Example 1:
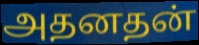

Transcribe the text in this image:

அதனதன்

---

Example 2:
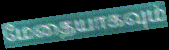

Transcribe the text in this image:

மேதையாகவும்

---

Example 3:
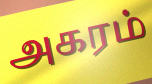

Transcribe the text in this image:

அகரம்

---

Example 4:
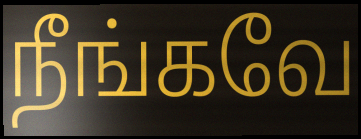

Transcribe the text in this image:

நீங்கவே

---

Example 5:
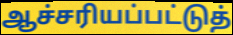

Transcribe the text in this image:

ஆச்சரியப்பட்டுத்